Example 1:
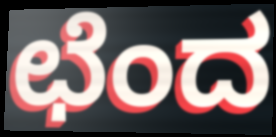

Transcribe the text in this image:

ಛೆಂದ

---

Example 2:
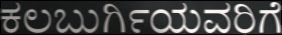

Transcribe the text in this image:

ಕಲಬುರ್ಗಿಯವರಿಗೆ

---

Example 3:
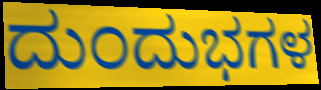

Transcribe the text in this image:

ದುಂದುಭಗಳ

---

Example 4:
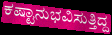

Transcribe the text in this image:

ಕಷ್ಟಾನುಭವಿಸುತ್ತಿದ್ದ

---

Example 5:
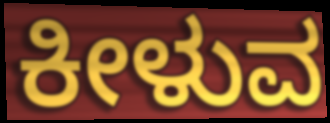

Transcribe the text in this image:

ಕೀಳುವ